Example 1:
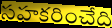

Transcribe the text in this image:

సహకరించేది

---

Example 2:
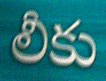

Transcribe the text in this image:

లీకు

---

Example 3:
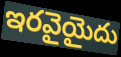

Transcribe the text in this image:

ఇరవైయైదు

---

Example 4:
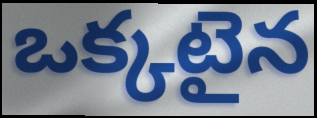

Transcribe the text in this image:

ఒక్కటైన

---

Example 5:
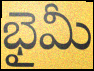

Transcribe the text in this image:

భైమీ